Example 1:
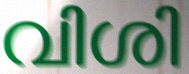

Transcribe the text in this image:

വിശി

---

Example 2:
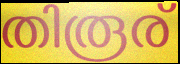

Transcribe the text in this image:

തിരൂര്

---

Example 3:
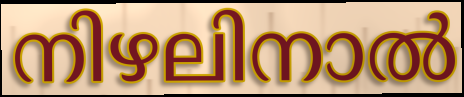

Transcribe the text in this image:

നിഴലിനാൽ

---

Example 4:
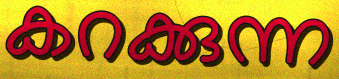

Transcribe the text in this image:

കറക്കുന്ന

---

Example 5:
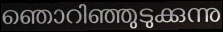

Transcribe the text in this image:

ഞൊറിഞ്ഞുടുക്കുന്നു